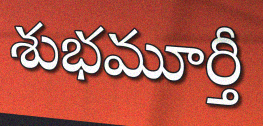
శుభమూర్తీ